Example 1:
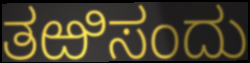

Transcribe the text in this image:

ತಱಿಸಂದು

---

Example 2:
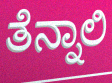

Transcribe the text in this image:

ತೆನ್ನಾಲಿ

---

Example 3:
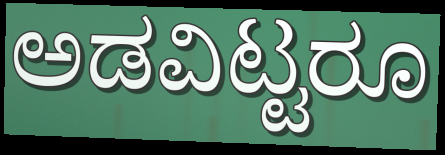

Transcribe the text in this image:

ಅಡವಿಟ್ಟರೂ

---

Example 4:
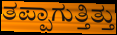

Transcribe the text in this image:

ತಪ್ಪಾಗುತ್ತಿತ್ತು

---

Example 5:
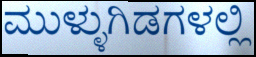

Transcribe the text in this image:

ಮುಳ್ಳುಗಿಡಗಳಲ್ಲಿ